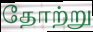
தோற்று